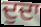
ਦੁਦਾ